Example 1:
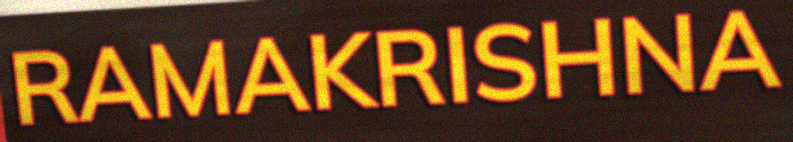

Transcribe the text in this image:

RAMAKRISHNA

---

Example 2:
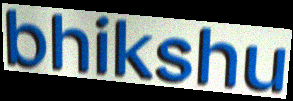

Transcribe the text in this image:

bhikshu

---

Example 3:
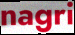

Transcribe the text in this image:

nagri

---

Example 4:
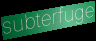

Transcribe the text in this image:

subterfuge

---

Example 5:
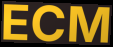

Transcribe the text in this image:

ECM